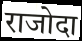
राजोदा